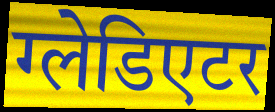
ग्लेडिएटर